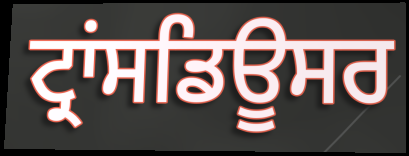
ਟ੍ਰਾਂਸਡਿਊਸਰ